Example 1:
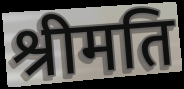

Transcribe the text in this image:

श्रीमति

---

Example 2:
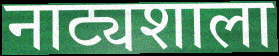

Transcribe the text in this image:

नाट्यशाला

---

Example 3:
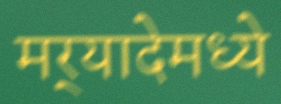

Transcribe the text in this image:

मर्यादेमध्ये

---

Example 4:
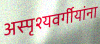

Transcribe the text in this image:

अस्पृश्यवर्गीयांना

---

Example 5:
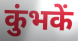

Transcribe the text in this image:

कुंभकें